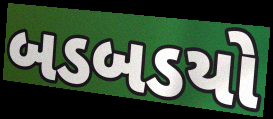
બડબડયો